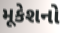
મૂકેશનો